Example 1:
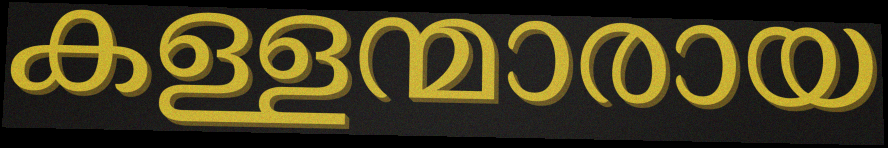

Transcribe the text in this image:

കള്ളന്മാരായ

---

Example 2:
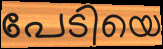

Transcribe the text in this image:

പേടിയെ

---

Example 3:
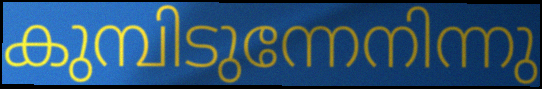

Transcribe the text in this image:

കുമ്പിടുന്നേനിന്നു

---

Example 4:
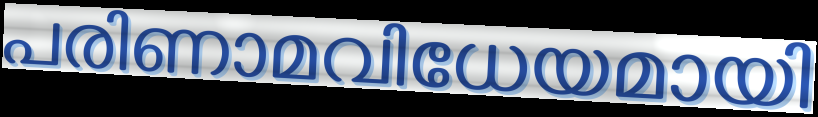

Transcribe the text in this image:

പരിണാമവിധേയമായി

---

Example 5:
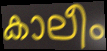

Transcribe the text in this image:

കാലീം